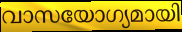
വാസയോഗ്യമായി